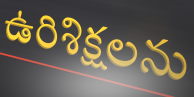
ఉరిశిక్షలను